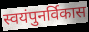
स्वयंपुनर्विकास